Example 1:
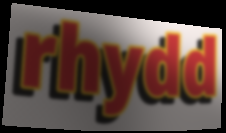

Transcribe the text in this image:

rhydd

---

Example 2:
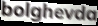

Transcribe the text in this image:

bolghevda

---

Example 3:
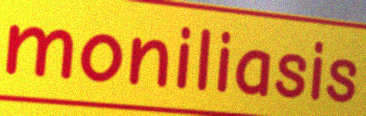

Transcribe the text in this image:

moniliasis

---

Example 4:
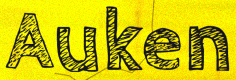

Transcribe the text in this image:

Auken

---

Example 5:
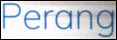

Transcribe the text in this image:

Perang